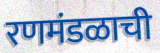
रणमंडळाची